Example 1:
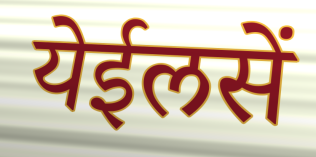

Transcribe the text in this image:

येईलसें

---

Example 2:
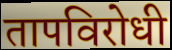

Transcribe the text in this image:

तापविरोधी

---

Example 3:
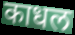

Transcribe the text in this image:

काधल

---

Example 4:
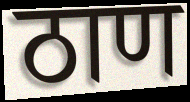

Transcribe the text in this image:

ठाण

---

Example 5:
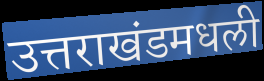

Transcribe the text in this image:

उत्तराखंडमधली